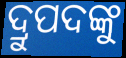
ଦ୍ରୁପଦଙ୍କୁ